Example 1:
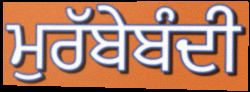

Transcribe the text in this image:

ਮੁਰੱਬੇਬੰਦੀ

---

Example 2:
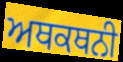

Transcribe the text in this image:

ਅਥਕਥਨੀ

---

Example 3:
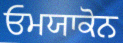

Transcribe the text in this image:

ਓਮਯਾਕੋਨ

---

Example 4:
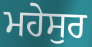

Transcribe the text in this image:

ਮਹੇਸੁਰ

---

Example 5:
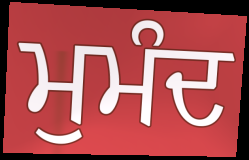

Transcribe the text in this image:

ਮੁਮੰਦ